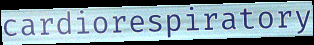
cardiorespiratory